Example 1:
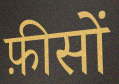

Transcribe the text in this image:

फ़ीसों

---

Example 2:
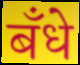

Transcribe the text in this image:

बँधे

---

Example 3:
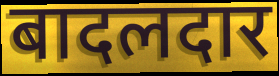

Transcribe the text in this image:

बादलदार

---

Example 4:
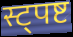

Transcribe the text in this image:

स्ट्पष्ट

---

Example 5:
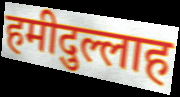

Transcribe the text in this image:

हमीदुल्लाह